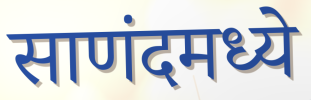
साणंदमध्ये